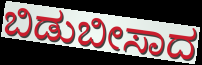
ಬಿಡುಬೀಸಾದ